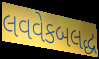
લવવેકબલદ્ધ